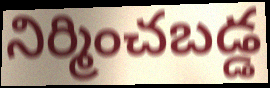
నిర్మించబడ్డ